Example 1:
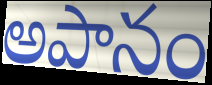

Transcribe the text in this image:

అపానం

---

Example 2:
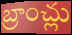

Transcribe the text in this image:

బ్రాంచ్లు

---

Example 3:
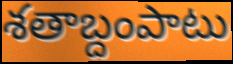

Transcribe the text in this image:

శతాబ్దంపాటు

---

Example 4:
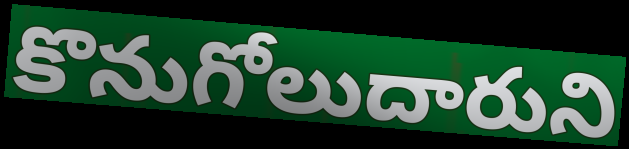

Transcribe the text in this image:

కొనుగోలుదారుని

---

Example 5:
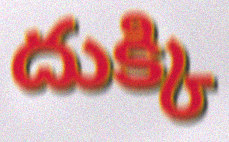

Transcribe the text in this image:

దుక్కి